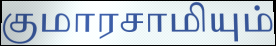
குமாரசாமியும்